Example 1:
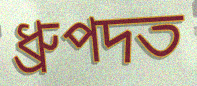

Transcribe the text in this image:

ধ্ৰুপদত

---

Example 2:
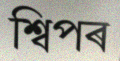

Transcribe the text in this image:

শ্বিপৰ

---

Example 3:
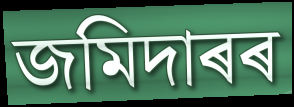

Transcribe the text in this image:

জমিদাৰৰ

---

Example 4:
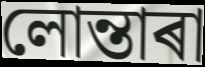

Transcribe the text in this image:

লোন্তাৰা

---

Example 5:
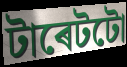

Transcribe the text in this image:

টাৰেটটো